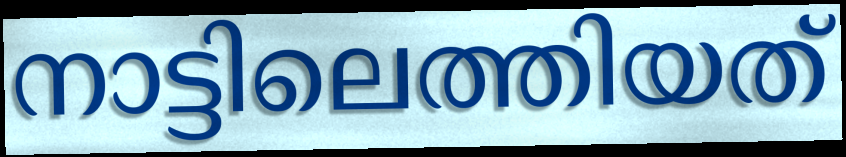
നാട്ടിലെത്തിയത്